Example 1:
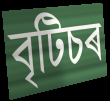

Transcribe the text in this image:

বৃটিচৰ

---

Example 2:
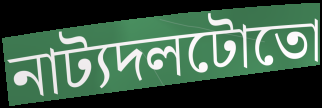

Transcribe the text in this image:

নাট্যদলটোতো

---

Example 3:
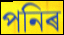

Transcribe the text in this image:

পনিৰ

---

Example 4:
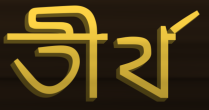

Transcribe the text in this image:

তীৰ্থ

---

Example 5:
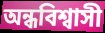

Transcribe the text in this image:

অন্ধবিশ্বাসী